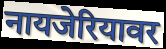
नायजेरियावर